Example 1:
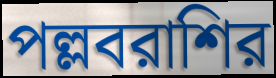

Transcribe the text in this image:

পল্লবরাশির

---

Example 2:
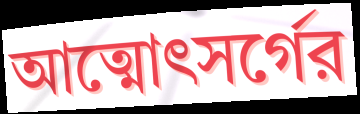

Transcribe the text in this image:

আত্মোৎসর্গের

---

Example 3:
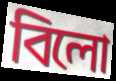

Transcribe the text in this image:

বিলো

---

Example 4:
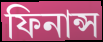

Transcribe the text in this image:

ফিনান্স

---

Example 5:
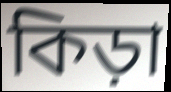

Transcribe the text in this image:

কিড়া